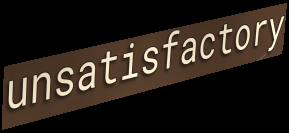
unsatisfactory